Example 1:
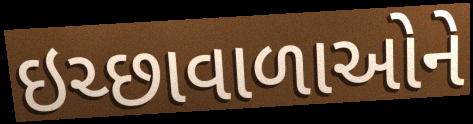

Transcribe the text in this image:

ઇચ્છાવાળાઓને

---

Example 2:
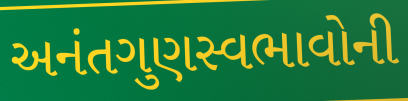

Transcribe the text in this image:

અનંતગુણસ્વભાવોની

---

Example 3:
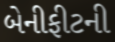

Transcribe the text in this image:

બેનીફીટની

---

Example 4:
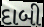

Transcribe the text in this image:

દાબી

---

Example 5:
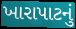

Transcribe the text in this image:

ખારાપાટનું